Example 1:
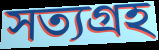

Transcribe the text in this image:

সত্যগ্ৰহ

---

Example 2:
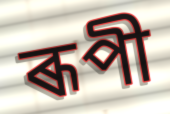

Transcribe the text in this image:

ৰূপী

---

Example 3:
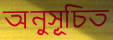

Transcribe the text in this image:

অনুসূচিত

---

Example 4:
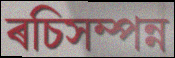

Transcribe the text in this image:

ৰচিসম্পন্ন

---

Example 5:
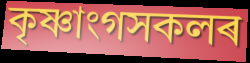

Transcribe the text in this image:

কৃষ্ণাংগসকলৰ